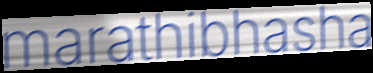
marathibhasha